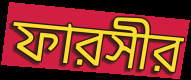
ফারসীর